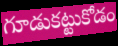
గూడుకట్టుకోడం